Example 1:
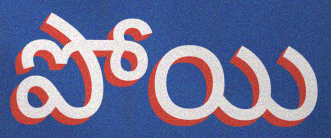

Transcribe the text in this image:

పోయి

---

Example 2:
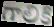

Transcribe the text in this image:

గాలికి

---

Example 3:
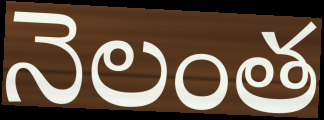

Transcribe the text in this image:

నెలంత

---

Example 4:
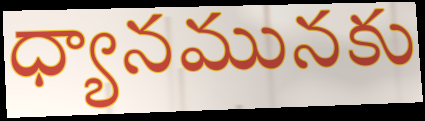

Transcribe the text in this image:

ధ్యానమునకు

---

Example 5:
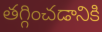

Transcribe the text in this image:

తగ్గించడానికి